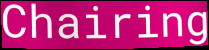
Chairing